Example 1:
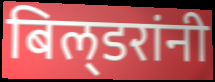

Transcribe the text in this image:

बिल्डरांनी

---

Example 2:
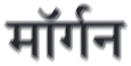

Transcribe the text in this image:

मॉर्गन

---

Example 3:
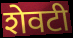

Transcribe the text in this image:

शेवटी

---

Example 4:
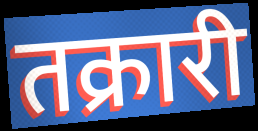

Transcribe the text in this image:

तक्रारी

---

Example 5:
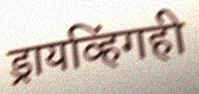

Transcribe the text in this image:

ड्रायव्हिंगही